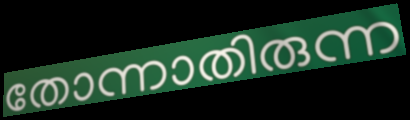
തോന്നാതിരുന്ന